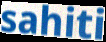
sahiti